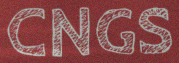
CNGS